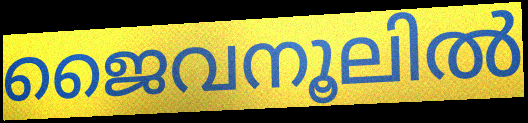
ജൈവനൂലിൽ